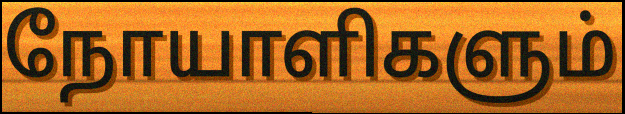
நோயாளிகளும்